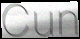
Cun